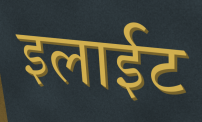
इलाईट